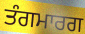
ਤੰਗਮਾਰਗ